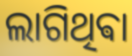
ଲାଗିଥିଵା